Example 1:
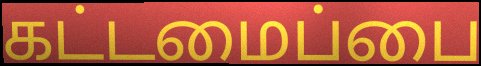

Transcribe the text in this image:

கட்டமைப்பை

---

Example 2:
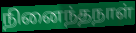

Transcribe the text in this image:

நினைந்தநாள்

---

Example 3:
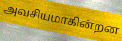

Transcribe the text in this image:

அவசியமாகின்றன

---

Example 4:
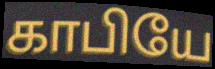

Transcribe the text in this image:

காபியே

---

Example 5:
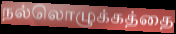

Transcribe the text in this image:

நல்லொழுக்கத்தை